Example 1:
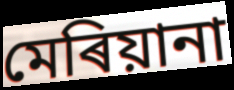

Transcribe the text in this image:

মেৰিয়ানা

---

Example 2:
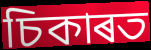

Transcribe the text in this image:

চিকাৰত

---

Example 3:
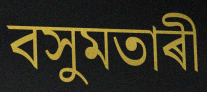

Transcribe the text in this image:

বসুমতাৰী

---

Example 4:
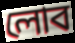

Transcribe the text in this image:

লোব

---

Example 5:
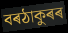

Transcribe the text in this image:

বৰঠাকুৰৰ